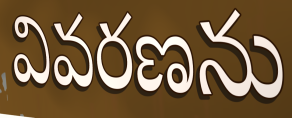
వివరణను